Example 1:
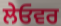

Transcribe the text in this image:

ਲੇਓਵਰ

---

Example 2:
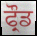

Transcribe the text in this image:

ਫ੍ਰੌਡ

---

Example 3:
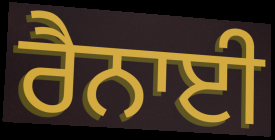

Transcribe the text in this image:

ਰੈਨਾਈ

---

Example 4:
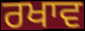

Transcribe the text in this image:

ਰਖਾਵ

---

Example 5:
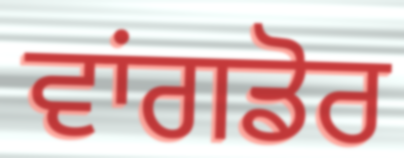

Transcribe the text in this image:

ਵਾਂਗਡੋਰ